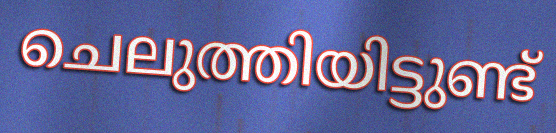
ചെലുത്തിയിട്ടുണ്ട്